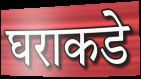
घराकडे